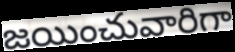
జయించువారిగా